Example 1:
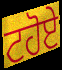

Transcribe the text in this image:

ਟਹੋਏ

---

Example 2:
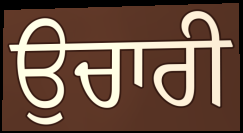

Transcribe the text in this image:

ਉਚਾਰੀ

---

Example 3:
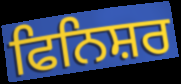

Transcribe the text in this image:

ਫਿਨਿਸ਼ਰ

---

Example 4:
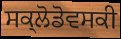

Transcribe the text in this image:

ਸਕ੍ਲੋਡੋਵਸਕੀ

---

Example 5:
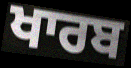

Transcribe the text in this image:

ਖਾਰਬ